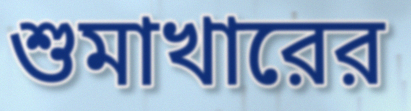
শুমাখারের